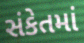
સંકેતમાં